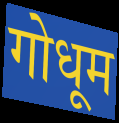
गोधूम